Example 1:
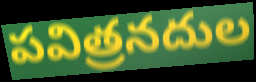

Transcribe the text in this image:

పవిత్రనదుల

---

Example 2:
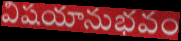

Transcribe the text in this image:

విషయానుభవం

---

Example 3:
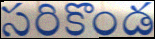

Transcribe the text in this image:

సరికొండ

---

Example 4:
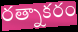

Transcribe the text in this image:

రత్నాకరం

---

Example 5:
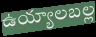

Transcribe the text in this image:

ఉయ్యాలబల్ల